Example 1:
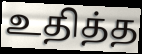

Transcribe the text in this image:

உதித்த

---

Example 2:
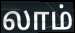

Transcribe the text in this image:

லாம்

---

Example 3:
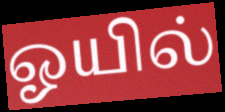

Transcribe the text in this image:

ஓயில்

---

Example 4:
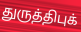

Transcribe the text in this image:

துருத்திபுக்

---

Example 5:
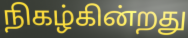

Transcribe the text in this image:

நிகழ்கின்றது